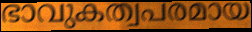
ഭാവുകത്വപരമായ